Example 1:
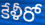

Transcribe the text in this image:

కేళీరో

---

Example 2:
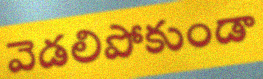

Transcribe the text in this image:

వెడలిపోకుండా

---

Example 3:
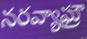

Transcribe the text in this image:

నరవ్యాఘ్రౌ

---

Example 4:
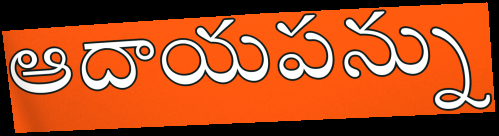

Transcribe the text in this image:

ఆదాయపన్ను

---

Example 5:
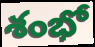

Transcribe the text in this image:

శంభో